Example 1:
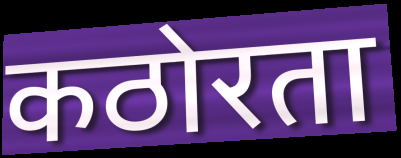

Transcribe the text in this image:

कठोरता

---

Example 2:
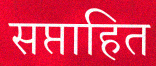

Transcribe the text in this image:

सप्ताहित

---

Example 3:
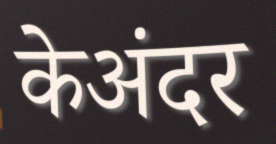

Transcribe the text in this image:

केअंदर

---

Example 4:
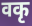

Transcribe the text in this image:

वकृ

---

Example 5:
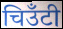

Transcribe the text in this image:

चिउँटी